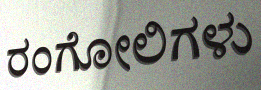
ರಂಗೋಲಿಗಳು